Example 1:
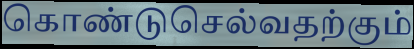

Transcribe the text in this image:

கொண்டுசெல்வதற்கும்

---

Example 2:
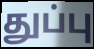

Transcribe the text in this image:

துப்பு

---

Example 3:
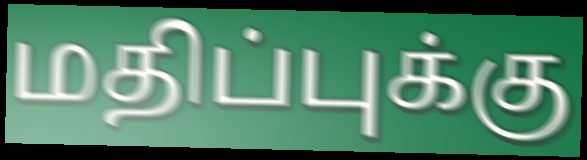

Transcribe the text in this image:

மதிப்புக்கு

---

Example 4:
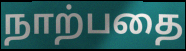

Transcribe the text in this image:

நாற்பதை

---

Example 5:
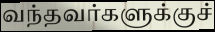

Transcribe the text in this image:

வந்தவர்களுக்குச்